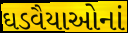
ઘડવૈયાઓનાં